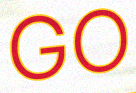
GO